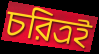
চরিত্রই